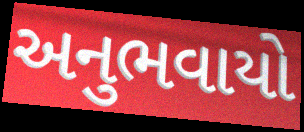
અનુભવાયો